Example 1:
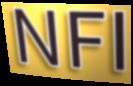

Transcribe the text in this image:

NFI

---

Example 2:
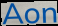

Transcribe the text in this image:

Aon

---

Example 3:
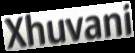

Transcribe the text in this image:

Xhuvani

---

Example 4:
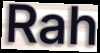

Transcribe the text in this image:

Rah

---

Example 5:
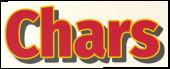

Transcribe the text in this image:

Chars